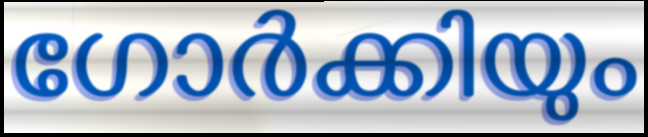
ഗോർക്കിയും